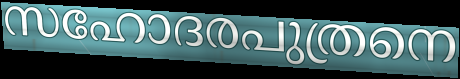
സഹോദരപുത്രനെ